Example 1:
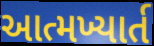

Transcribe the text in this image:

આત્મખ્યાર્ત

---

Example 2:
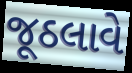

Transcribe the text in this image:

જૂઠલાવે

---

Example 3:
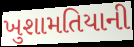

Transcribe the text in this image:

ખુશામતિયાની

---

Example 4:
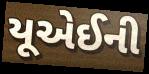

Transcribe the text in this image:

યૂએઈની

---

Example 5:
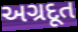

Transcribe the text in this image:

અગ્રદૂત